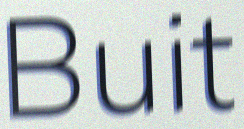
Buit